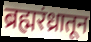
ब्रह्मरंध्रातून